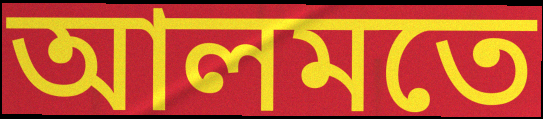
আলমতে